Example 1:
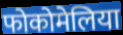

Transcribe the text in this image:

फोकोमेलिया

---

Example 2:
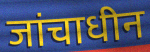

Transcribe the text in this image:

जांचाधीन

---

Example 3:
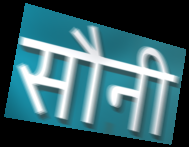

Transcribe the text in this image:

सौनी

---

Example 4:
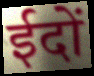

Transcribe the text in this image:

ईदों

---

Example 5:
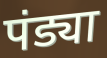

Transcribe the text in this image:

पंड्या